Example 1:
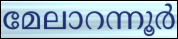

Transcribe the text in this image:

മേലാറന്നൂർ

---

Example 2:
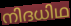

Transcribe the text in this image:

നിദധിഥ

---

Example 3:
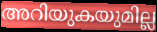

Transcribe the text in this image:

അറിയുകയുമില്ല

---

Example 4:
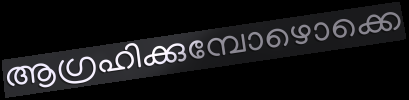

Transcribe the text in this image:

ആഗ്രഹിക്കുമ്പോഴൊക്കെ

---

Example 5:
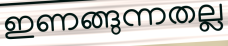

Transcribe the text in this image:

ഇണങ്ങുന്നതല്ല